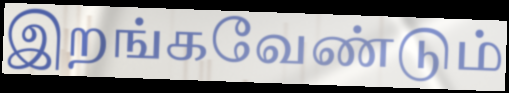
இறங்கவேண்டும்